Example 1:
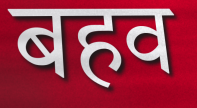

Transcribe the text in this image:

बहव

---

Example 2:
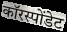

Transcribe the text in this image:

कॉरस्पोंडेट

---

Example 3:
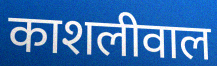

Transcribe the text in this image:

काशलीवाल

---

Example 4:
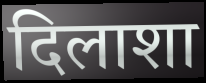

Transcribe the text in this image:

दिलाशा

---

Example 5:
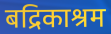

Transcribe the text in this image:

बद्रिकाश्रम